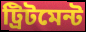
ট্রিটমেন্ট